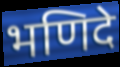
भणिदे